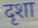
दृशा